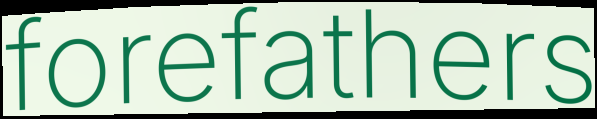
forefathers